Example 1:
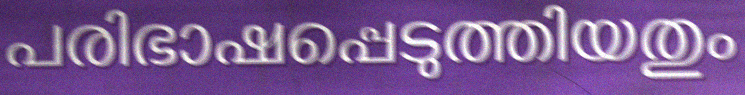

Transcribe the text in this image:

പരിഭാഷപ്പെടുത്തിയതും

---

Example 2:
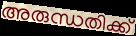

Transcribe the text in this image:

അരുന്ധതിക്ക്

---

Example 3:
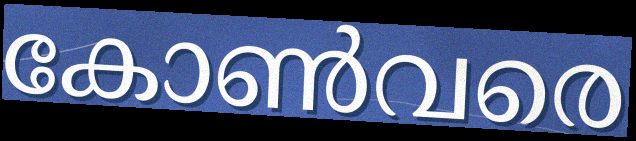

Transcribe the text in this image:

കോൺവരെ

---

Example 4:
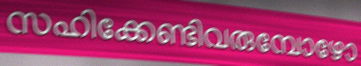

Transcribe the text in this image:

സഹിക്കേണ്ടിവരുമ്പോഴോ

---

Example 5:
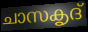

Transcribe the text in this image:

ചാസകൃദ്